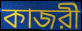
কাজরী